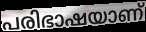
പരിഭാഷയാണ്